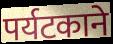
पर्यटकाने